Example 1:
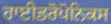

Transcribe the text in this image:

ਹਾਈਡਰੋਪੋਨਿਕਸ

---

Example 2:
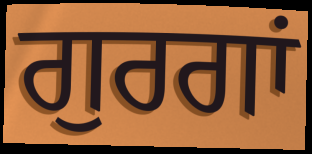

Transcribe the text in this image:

ਗੁਰਗਾਂ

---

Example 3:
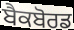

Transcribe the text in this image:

ਬੈਕਬੋਰਡ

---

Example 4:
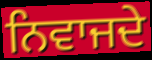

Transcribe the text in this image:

ਨਿਵਾਜਦੇ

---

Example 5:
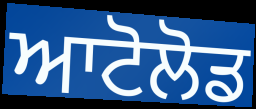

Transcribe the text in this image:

ਆਟੋਲੋਡ